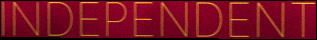
INDEPENDENT